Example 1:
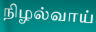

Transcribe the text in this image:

நிழல்வாய்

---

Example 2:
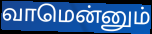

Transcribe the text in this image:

வாமென்னும்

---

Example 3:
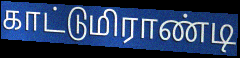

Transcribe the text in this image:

காட்டுமிராண்டி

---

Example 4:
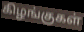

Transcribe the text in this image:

கிழங்குகள்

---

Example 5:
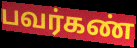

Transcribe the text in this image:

பவர்கண்